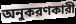
অনুকরণকারী